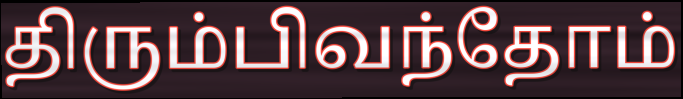
திரும்பிவந்தோம்